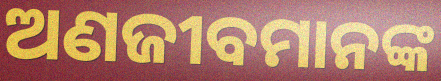
ଅଣଜୀବମାନଙ୍କ